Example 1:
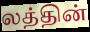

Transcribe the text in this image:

லத்தின்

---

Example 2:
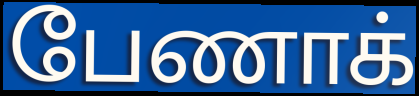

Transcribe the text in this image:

பேணாக்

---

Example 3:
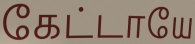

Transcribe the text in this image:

கேட்டாயே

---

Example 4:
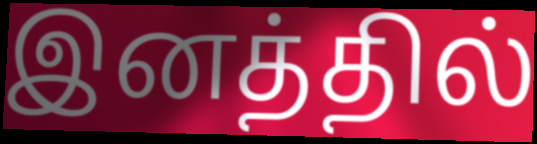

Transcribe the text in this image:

இனத்தில்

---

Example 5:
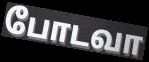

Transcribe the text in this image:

போடவா